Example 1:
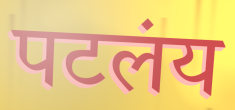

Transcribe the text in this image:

पटलंय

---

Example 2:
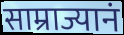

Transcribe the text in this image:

साम्राज्यानं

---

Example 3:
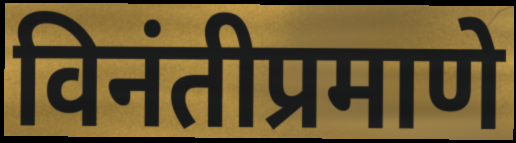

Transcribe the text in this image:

विनंतीप्रमाणे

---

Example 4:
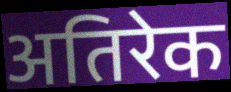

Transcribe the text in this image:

अतिरेक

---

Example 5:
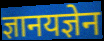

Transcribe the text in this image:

ज्ञानयज्ञेन